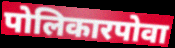
पोलिकारपोवा